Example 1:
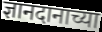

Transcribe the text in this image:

ज्ञानदानाच्या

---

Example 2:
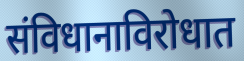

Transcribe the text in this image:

संविधानाविरोधात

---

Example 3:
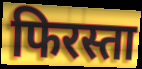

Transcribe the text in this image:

फिरस्ता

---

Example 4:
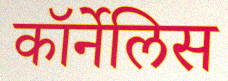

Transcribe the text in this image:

कॉर्नेलिस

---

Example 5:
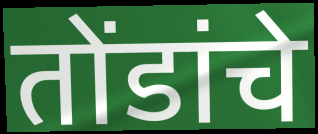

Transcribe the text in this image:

तोंडांचे